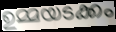
ഉമ്മയടക്കം